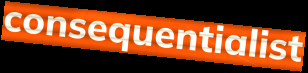
consequentialist